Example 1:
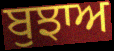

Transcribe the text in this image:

ਬੁਝਾਅ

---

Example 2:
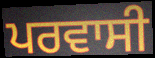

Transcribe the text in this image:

ਪਰਵਾਸੀ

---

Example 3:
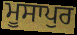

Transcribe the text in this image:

ਮੂਸਾਪੁਰ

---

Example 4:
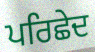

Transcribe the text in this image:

ਪਰਿਛੇਦ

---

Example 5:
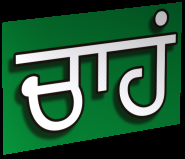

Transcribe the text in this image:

ਚਾਹਂ